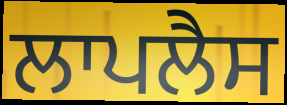
ਲਾਪਲੈਸ